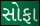
સોફા